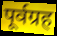
पूर्वग्रह